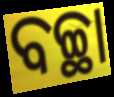
ବଚ୍ଛା